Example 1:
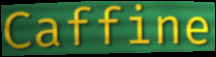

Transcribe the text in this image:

Caffine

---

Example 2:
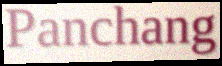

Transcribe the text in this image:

Panchang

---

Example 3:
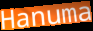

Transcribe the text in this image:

Hanuma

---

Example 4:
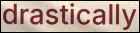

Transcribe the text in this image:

drastically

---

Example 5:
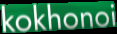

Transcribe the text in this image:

kokhonoi